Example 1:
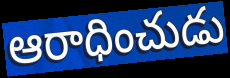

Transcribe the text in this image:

ఆరాధించుడు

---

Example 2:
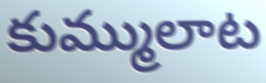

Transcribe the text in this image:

కుమ్ములాట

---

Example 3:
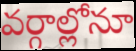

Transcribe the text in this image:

వర్గాల్లోనూ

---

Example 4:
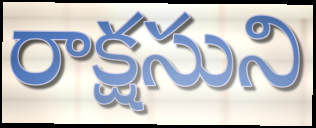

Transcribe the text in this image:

రాక్షసుని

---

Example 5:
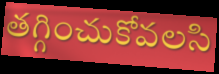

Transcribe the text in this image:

తగ్గించుకోవలసి